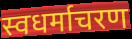
स्वधर्माचरण